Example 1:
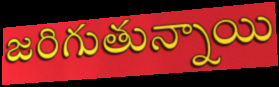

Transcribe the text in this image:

జరిగుతున్నాయి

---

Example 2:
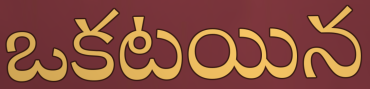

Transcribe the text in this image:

ఒకటయిన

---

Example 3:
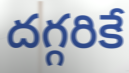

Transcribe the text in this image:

దగ్గరికే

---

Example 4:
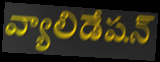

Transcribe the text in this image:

వ్యాలిడేషన్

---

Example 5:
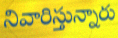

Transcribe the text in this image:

నివారిస్తున్నారు